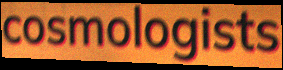
cosmologists